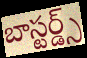
బాస్టర్డ్స్